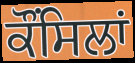
ਕੌਂਸਿਲਾਂ